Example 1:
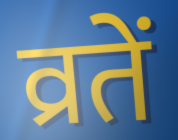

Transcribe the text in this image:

व्रतें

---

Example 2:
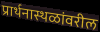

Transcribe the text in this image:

प्रार्थनास्थळांवरील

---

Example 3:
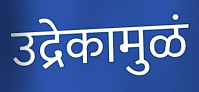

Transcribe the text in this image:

उद्रेकामुळं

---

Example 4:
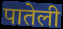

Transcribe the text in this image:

पातेली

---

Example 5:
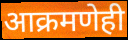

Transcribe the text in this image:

आक्रमणेही